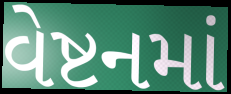
વેષ્ટનમાં